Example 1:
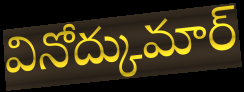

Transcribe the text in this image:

వినోద్కుమార్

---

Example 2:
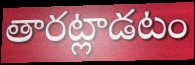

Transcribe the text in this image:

తారట్లాడటం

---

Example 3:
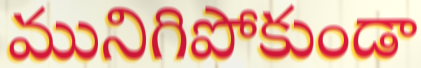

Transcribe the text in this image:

మునిగిపోకుండా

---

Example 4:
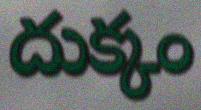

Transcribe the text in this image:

దుక్కం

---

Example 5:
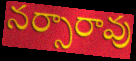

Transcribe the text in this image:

నర్సారావు